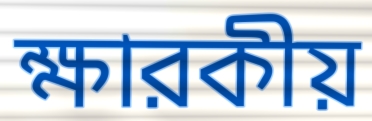
ক্ষারকীয়